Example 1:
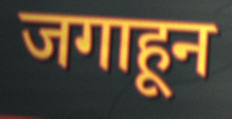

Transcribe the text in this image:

जगाहून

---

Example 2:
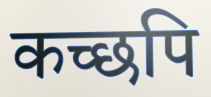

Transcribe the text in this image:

कच्छपि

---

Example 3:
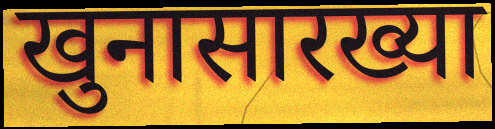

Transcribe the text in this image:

खुनासारख्या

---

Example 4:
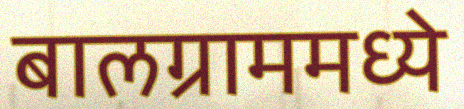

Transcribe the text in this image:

बालग्राममध्ये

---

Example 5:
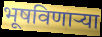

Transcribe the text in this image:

भूषविणार्‍या